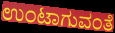
ಉಂಟಾಗುವಂತೆ